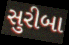
સુરીબા